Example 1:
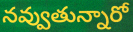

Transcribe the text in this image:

నవ్వుతున్నారో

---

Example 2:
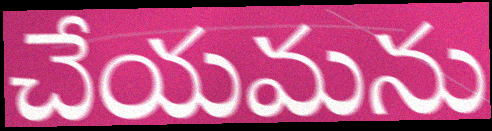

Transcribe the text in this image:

చేయమను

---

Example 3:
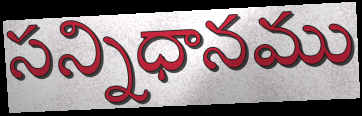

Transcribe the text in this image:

సన్నిధానము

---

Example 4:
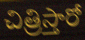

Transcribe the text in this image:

చిత్రిస్తారో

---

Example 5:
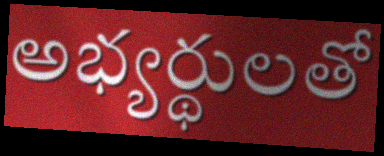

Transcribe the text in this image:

అభ్యర్థులతో